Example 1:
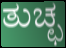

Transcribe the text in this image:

ತುಚ್ಛ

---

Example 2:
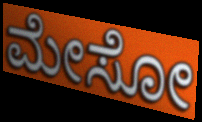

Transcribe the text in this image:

ಮೇಸೋ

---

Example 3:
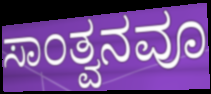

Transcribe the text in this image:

ಸಾಂತ್ವನವೂ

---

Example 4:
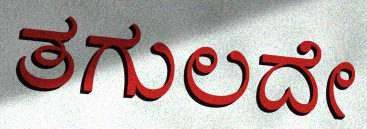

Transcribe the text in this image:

ತಗುಲದೇ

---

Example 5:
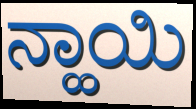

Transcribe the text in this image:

ನ್ಹಾಯಿ